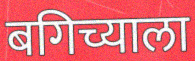
बगिच्याला